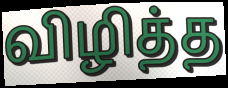
விழித்த